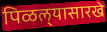
पिळल्यासारखे